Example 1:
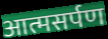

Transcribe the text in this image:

आत्मसर्पण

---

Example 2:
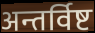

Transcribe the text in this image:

अन्तर्विष्ट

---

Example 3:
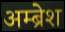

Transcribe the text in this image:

अम्ब्रेश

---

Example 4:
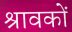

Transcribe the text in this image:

श्रावकों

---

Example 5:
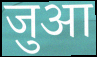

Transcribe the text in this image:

जुआ